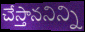
చేస్తాననిన్ని